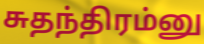
சுதந்திரம்னு